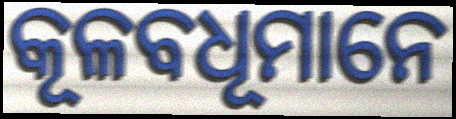
କୂଳବଧୂମାନେ